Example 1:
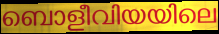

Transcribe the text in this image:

ബൊളീവിയയിലെ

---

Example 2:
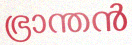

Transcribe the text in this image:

ഭ്രാന്തൻ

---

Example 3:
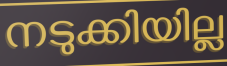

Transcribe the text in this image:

നടുക്കിയില്ല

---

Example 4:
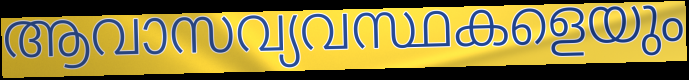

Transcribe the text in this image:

ആവാസവ്യവസ്ഥകളെയും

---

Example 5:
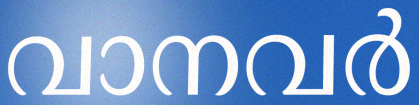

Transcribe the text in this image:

വാനവർ